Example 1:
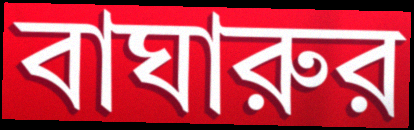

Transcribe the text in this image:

বাঘারুর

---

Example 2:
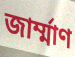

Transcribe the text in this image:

জার্ম্মাণ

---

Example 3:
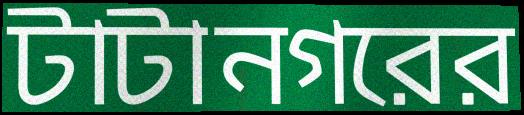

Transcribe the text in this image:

টাটানগরের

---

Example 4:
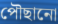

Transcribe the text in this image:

পৌছানো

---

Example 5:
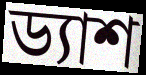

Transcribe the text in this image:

ড্যাশ